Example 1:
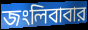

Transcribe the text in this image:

জংলিবাবার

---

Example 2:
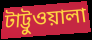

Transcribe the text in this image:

টাট্টুওয়ালা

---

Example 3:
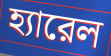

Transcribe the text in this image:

হ্যারেল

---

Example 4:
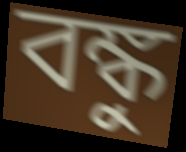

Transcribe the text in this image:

বঙ্কু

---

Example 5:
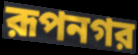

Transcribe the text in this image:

রূপনগর